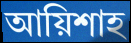
আয়িশাহ